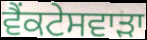
ਵੈਂਕਟੇਸਵਾੜਾ